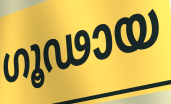
ഗൂഢായ